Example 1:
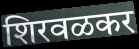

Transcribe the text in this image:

शिरवळकर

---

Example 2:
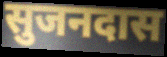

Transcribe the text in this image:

सुजनदास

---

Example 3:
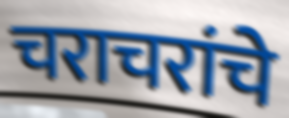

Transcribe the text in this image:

चराचरांचे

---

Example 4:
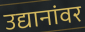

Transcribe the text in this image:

उद्यानांवर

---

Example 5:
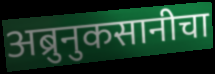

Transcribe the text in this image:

अब्रुनुकसानीचा